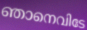
ഞാനെവിടേ